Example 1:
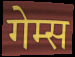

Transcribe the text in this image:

गेम्स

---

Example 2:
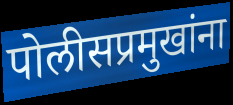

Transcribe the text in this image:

पोलीसप्रमुखांना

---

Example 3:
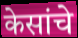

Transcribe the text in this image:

केसांचे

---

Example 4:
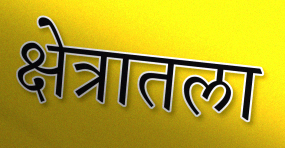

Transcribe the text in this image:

क्षेत्रातला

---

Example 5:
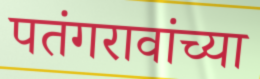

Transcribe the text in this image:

पतंगरावांच्या